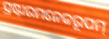
ସ୍ରଷ୍ଟାରମନେକରୂପମ୍